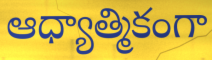
ఆధ్యాత్మికంగా